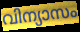
വിന്യാസം